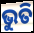
ଭୁତି